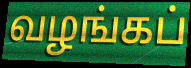
வழங்கப்